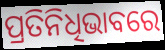
ପ୍ରତିନିଧିଭାବରେ